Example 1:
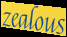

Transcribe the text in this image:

zealous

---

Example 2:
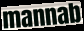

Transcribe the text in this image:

mannab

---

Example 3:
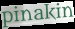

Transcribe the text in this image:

pinakin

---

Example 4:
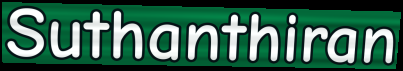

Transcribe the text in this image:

Suthanthiran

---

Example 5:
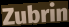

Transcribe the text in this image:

Zubrin